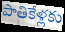
పాతికేళ్లకు